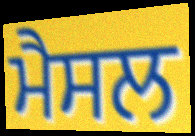
ਮੈਸਲ